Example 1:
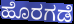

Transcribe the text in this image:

ಹೊರಗಡೆ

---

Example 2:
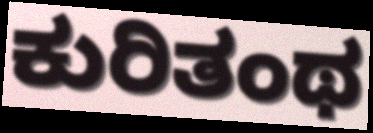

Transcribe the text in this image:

ಕುರಿತಂಥ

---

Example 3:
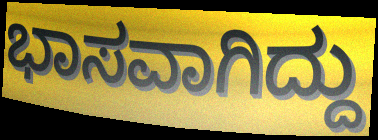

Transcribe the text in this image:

ಭಾಸವಾಗಿದ್ದು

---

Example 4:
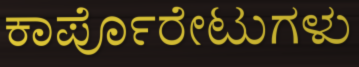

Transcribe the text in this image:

ಕಾರ್ಪೊರೇಟುಗಳು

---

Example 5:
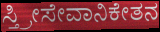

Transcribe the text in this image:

ಸ್ತ್ರೀಸೇವಾನಿಕೇತನ